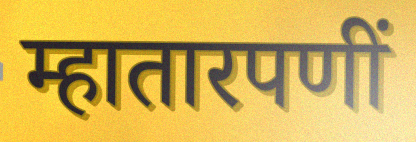
म्हातारपणीं